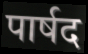
पार्षद